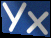
Yx